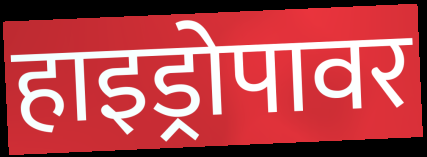
हाइड्रोपावर